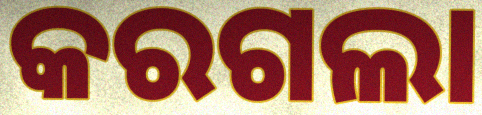
କରଗଲା